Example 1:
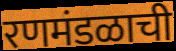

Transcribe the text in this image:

रणमंडळाची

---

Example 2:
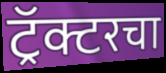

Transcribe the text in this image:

ट्रॅक्टरचा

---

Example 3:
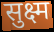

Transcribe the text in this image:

सुक्ष्म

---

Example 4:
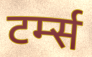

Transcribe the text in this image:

टर्म्स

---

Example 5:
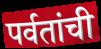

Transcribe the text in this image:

पर्वतांची